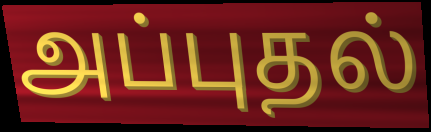
அப்புதல்